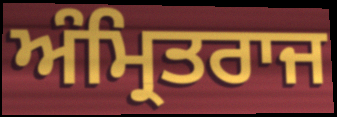
ਅੰਮ੍ਰਿਤਰਾਜ